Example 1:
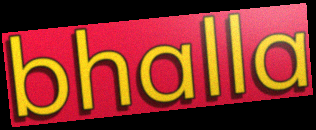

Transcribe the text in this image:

bhalla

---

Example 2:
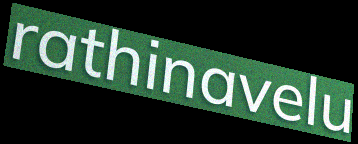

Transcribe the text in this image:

rathinavelu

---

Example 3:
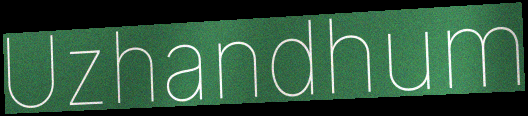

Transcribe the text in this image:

Uzhandhum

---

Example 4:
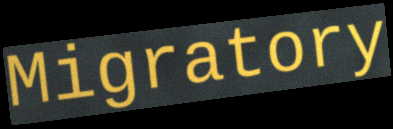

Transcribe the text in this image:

Migratory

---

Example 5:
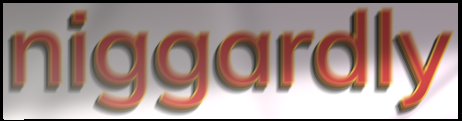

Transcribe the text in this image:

niggardly